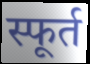
स्फूर्त